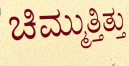
ಚಿಮ್ಮುತ್ತಿತ್ತು